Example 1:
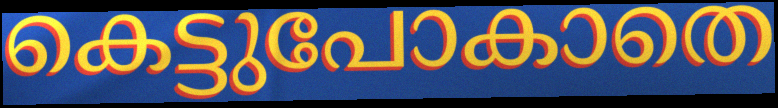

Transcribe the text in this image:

കെട്ടുപോകാതെ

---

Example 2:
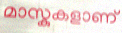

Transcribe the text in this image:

മാസ്കുകളാണ്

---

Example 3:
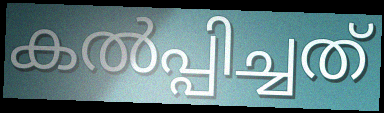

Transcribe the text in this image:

കൽപ്പിച്ചത്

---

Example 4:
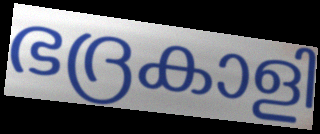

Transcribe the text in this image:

ഭദ്രകാളി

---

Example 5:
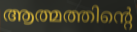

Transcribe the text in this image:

ആത്മത്തിന്റെ